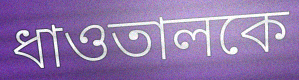
ধাওতালকে